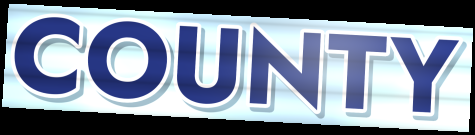
COUNTY